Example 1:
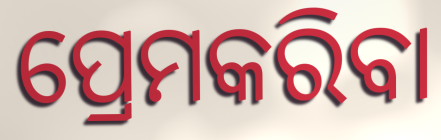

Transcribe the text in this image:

ପ୍ରେମକରିବା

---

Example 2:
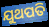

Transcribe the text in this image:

ଯୁଥପତି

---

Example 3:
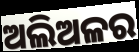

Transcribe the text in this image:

ଅଲିଅଳର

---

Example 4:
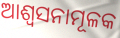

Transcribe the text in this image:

ଆଶ୍ୱସନାମୂଳକ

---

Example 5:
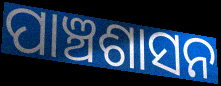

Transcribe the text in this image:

ପାଞ୍ଚଶାସନ